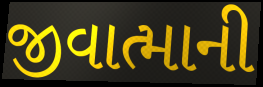
જીવાત્માની